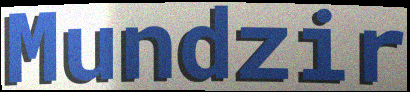
Mundzir